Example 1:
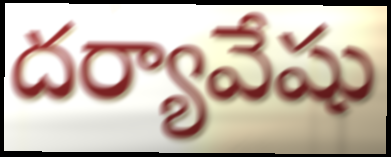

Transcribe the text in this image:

దర్యావేషు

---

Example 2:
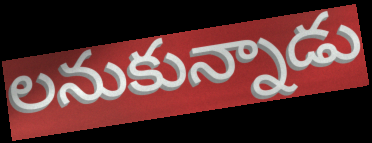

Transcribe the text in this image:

లనుకున్నాడు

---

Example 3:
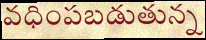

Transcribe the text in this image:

వధింపబడుతున్న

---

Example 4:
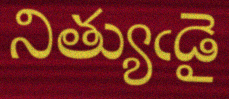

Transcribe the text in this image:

నిత్యుఁడై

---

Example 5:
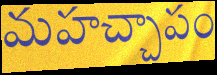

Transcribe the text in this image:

మహచ్చాపం